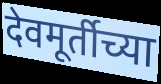
देवमूर्तीच्या